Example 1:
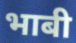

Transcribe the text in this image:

भाबी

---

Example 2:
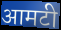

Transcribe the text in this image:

आमटी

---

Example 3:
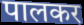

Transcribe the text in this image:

पालकर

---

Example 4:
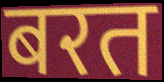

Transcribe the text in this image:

बरत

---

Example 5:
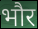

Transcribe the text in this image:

भौर